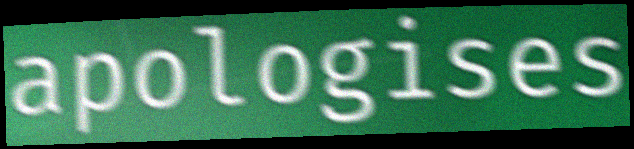
apologises